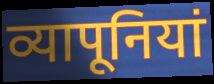
व्यापूनियां